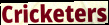
Cricketers